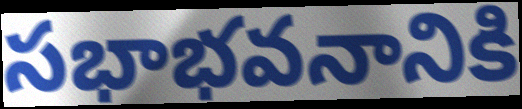
సభాభవనానికి